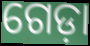
ଗେଡ଼ା